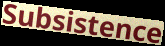
Subsistence